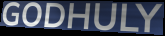
GODHULY